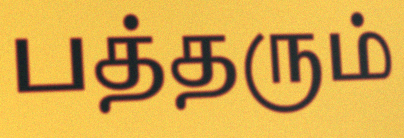
பத்தரும்